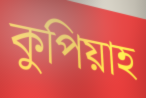
কুপিয়াহ